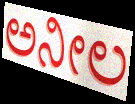
ಅನೀಲ